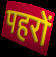
पहरों